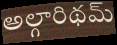
అల్గారిథమ్